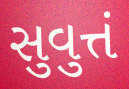
સુવુત્તં